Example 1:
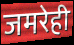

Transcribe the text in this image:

जमरेही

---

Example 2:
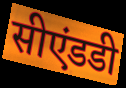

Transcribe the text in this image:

सीएंडडी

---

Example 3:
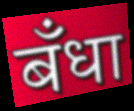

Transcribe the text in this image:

बँधा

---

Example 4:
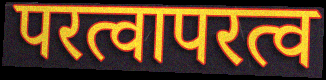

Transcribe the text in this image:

परत्वापरत्व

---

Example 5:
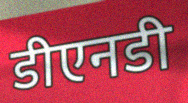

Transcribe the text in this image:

डीएनडी